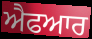
ਐਫਆਰ